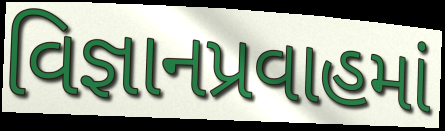
વિજ્ઞાનપ્રવાહમાં